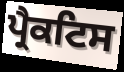
ਪ੍ਰੈਕਟਿਸ